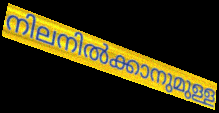
നിലനിൽക്കാനുമുള്ള